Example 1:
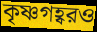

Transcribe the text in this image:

কৃষ্ণগহ্বরও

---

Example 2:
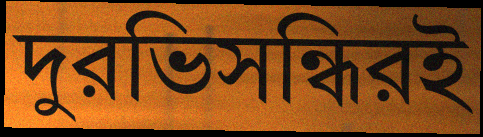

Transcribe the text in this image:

দুরভিসন্ধিরই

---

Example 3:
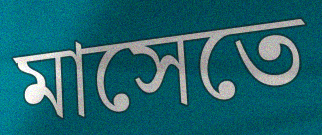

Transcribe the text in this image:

মাসেতে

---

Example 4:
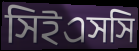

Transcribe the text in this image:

সিইএসসি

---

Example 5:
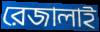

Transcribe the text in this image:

রেজালাই